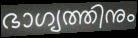
ഭാഗ്യത്തിനും